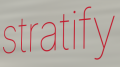
stratify